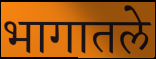
भागातले